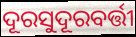
ଦୂରସୁଦୂରବର୍ତ୍ତୀ